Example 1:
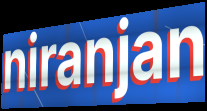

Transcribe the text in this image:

niranjan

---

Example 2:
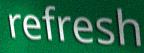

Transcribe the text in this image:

refresh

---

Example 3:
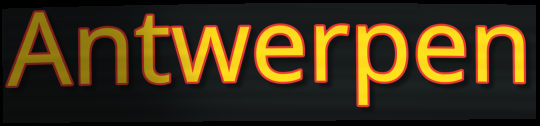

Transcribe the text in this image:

Antwerpen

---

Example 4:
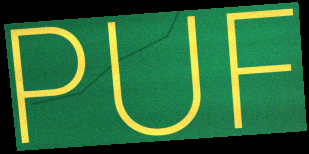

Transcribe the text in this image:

PUF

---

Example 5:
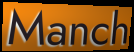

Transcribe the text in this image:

Manch